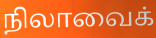
நிலாவைக்